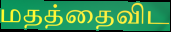
மதத்தைவிட